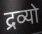
द्रव्यो